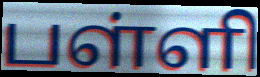
பள்ளி